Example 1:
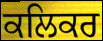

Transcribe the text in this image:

ਕਲਿਕਰ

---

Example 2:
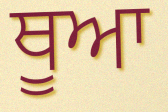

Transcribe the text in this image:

ਥੂਆ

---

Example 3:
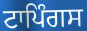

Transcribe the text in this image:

ਟਾਪਿੰਗਸ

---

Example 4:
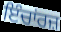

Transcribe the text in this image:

ਇੰਚਾਂਰਜ਼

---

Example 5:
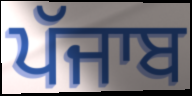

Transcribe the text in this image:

ਪੱਜਾਬ